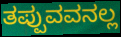
ತಪ್ಪುವವನಲ್ಲ